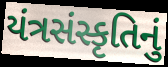
યંત્રસંસ્કૃતિનું